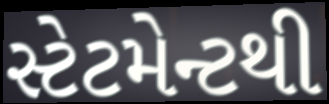
સ્ટેટમેન્ટથી